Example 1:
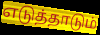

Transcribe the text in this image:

எடுத்தாடும்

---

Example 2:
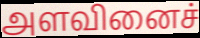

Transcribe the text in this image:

அளவினைச்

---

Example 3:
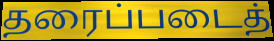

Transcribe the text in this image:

தரைப்படைத்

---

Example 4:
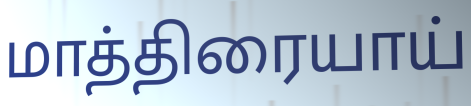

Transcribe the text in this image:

மாத்திரையாய்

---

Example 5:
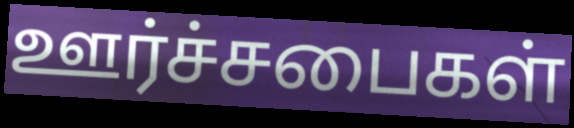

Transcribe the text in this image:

ஊர்ச்சபைகள்